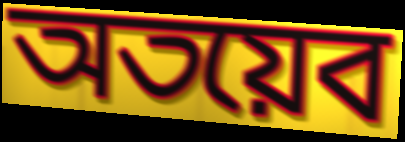
অতয়েব